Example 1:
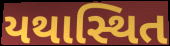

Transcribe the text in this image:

યથાસ્થિત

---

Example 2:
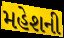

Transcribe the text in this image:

મહેશની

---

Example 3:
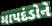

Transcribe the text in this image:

માપદંડોને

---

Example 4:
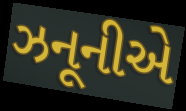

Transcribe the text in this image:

ઝનૂનીએ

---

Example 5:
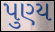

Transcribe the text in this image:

પુણ્ય